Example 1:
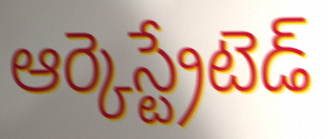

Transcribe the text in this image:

ఆర్కెస్ట్రేటెడ్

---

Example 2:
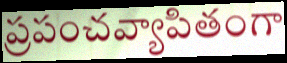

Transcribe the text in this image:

ప్రపంచవ్యాపితంగా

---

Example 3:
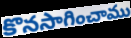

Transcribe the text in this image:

కొనసాగించాము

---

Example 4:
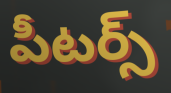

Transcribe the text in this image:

పీటర్స్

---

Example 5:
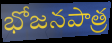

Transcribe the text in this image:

భోజనపాత్ర